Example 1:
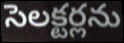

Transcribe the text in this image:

సెలక్టర్లను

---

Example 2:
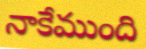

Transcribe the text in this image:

నాకేముంది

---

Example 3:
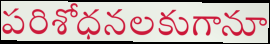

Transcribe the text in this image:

పరిశోధనలకుగానూ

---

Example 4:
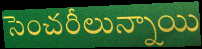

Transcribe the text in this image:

సెంచరీలున్నాయి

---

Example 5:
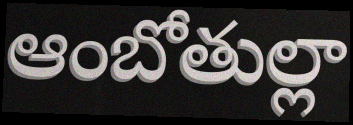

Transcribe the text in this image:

ఆంబోతుల్లా